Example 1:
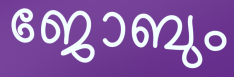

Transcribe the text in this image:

ജോബും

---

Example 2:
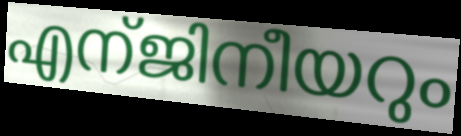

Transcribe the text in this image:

എന്ജിനീയറും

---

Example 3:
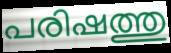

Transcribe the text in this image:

പരിഷത്തു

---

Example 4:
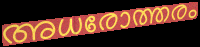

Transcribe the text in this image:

അധരോത്തരം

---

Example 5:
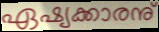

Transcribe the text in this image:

ഏഷ്യക്കാരനു്